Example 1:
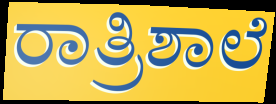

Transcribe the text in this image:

ರಾತ್ರಿಶಾಲೆ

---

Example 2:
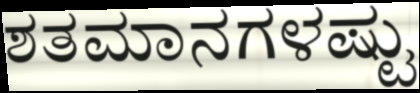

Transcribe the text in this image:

ಶತಮಾನಗಳಷ್ಟು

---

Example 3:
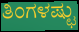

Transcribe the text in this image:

ತಿಂಗಳಷ್ಟು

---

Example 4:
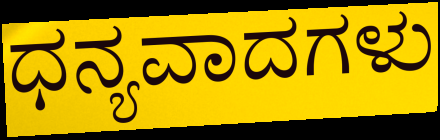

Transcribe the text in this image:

ಧನ್ಯವಾದಗಳು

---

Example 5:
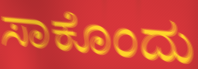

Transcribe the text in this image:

ಸಾಕೊಂದು